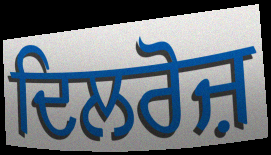
ਦਿਲਰੋਜ਼